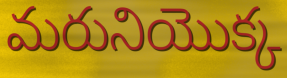
మరునియొక్క